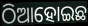
ଠିଆହୋଇଛ